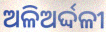
ଅଳିଅର୍ଦ୍ଦଳୀ